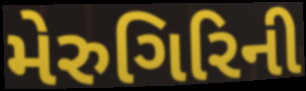
મેરુગિરિની